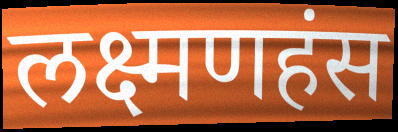
लक्ष्मणहंस